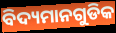
ବିଦ୍ୟମାନଗୁଡିକ